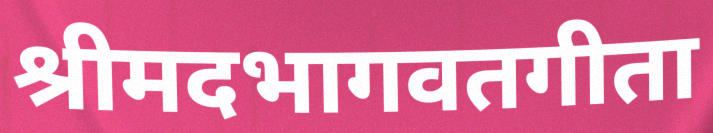
श्रीमदभागवतगीता